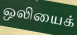
ஒலியைக்